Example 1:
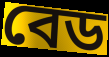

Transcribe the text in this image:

বেড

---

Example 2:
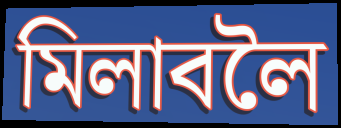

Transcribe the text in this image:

মিলাবলৈ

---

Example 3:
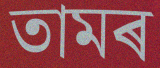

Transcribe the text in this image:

তামৰ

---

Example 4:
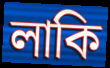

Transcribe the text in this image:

লাকি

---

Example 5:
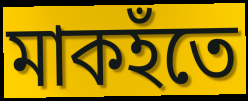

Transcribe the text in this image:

মাকহঁতে